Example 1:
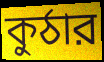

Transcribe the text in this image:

কুঠার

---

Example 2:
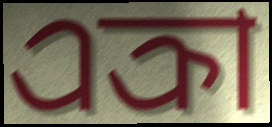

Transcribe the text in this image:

এক্রা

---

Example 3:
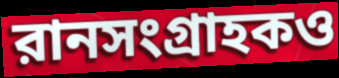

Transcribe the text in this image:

রানসংগ্রাহকও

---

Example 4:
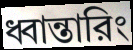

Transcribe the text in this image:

ধ্বান্তারিং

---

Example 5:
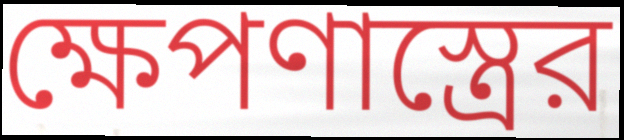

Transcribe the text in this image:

ক্ষেপণাস্ত্রের